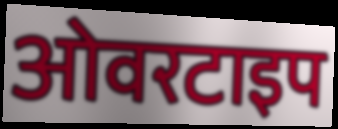
ओवरटाइप